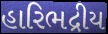
હારિભદ્રીય